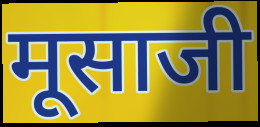
मूसाजी